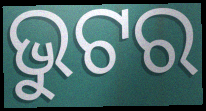
ଭୁଟର